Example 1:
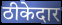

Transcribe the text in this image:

ठीकेदार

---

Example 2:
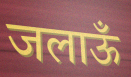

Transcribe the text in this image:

जलाऊँ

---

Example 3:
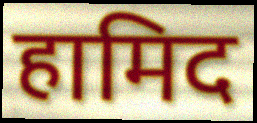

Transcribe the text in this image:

हामिद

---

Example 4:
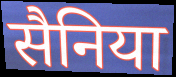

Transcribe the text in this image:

सैनिया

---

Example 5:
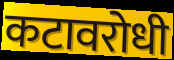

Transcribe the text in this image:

कटावरोधी